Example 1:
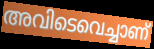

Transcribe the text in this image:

അവിടെവെച്ചാണ്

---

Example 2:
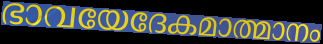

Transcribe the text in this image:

ഭാവയേദേകമാത്മാനം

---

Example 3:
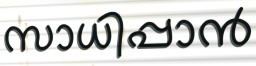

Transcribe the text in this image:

സാധിപ്പാൻ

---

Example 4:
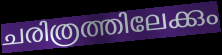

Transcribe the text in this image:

ചരിത്രത്തിലേക്കും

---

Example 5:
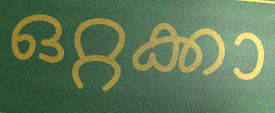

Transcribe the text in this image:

ഒറ്റക്കാ